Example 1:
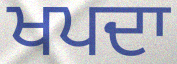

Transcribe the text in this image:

ਖਪਦਾ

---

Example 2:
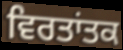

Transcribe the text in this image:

ਵਿਰਤਾਂਤਕ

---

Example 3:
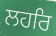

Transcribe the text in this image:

ਲਹਰਿ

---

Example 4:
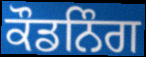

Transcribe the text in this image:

ਕੌਡਨਿੰਗ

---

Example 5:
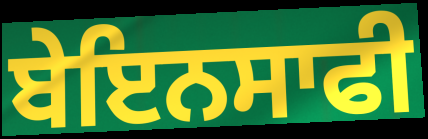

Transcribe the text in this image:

ਬੇਇਨਸਾਫੀ